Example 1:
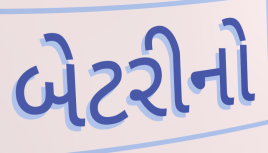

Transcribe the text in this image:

બેટરીનો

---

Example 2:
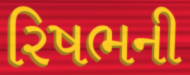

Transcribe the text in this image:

રિષભની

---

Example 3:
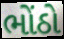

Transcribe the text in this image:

ભોંઠો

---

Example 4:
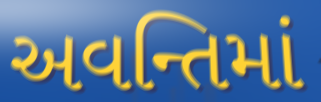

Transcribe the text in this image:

અવન્તિમાં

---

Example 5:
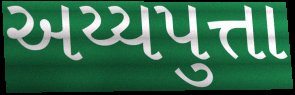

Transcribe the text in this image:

અય્યપુત્તા